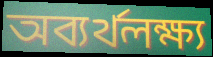
অব্যর্থলক্ষ্য